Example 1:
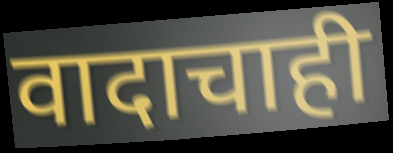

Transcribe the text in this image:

वादाचाही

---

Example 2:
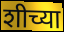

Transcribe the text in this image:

शीच्या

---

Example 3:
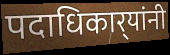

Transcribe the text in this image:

पदाधिकार्‍यांनी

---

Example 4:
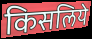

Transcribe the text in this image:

किसलिये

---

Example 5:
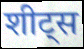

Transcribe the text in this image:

शीट्स